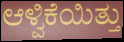
ಆಳ್ವಿಕೆಯಿತ್ತು